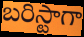
బరిస్టాగా